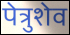
पेत्रुशेव